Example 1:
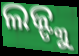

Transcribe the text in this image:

ଲଜ୍ଙ୍କୁ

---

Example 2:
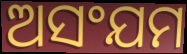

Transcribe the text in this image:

ଅସଂଯମ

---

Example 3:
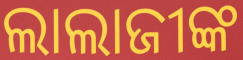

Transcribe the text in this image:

ଲାଲାଜୀଙ୍କ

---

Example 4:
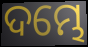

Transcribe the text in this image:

ଦମ୍ଭେ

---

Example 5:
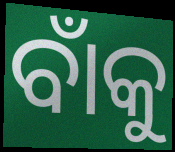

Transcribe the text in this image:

ବାଁକୁ